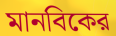
মানবিকের